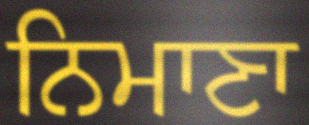
ਨਿਮਾਣਾ